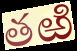
తఱి